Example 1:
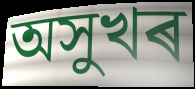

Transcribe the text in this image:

অসুখৰ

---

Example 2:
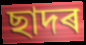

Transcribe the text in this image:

ছাদৰ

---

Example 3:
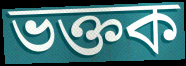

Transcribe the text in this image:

ভক্তক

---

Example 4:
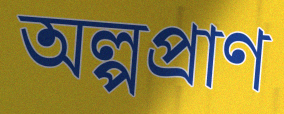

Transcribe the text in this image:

অল্পপ্ৰাণ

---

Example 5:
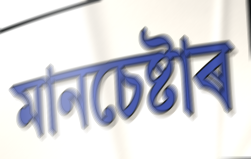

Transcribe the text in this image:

মানচেষ্টাৰ